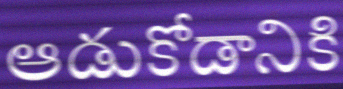
ఆడుకోడానికి